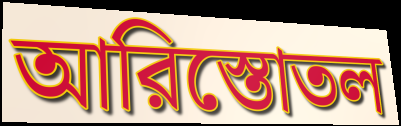
আরিস্তোতল